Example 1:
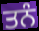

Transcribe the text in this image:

ਤਨੰ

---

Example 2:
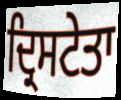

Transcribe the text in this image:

ਦ੍ਰਿਸਟੇਤਾ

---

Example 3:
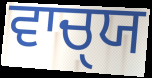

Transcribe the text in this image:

ਵਾਚੑਯ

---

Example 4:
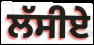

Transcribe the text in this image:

ਲੱਸੀਏ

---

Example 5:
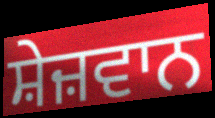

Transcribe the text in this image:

ਸ਼ੇਜ਼ਵਾਨ